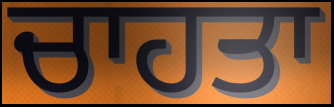
ਚਾਹਤਾ